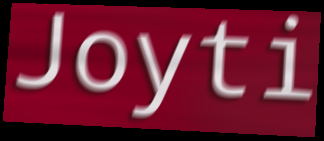
Joyti